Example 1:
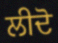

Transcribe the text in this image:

ਲੀਦੋ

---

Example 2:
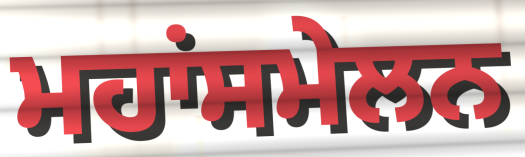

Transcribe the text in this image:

ਮਹਾਂਸਮੇਲਨ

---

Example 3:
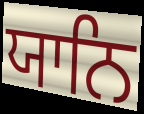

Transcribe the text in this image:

ਯਾਨਿ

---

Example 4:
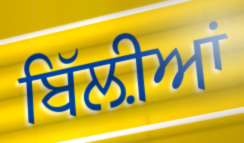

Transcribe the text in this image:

ਬਿੱਲ਼ੀਆਂ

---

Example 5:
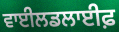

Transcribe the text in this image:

ਵਾਈਲਡਲਾਈਫ਼